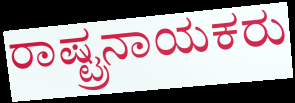
ರಾಷ್ಟ್ರನಾಯಕರು